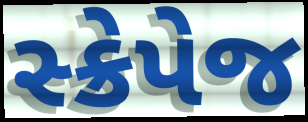
સ્ક્રેપેજ